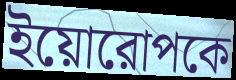
ইয়োরোপকে